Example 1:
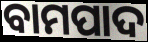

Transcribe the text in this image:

ବାମପାଦ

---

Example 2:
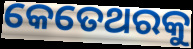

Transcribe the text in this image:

କେତେଥରକୁ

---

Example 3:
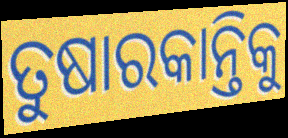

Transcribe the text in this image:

ତୁଷାରକାନ୍ତିକୁ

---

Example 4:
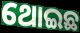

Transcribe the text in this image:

ଥୋଇଛ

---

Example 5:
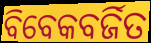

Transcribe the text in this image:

ବିବେକବର୍ଜିତ